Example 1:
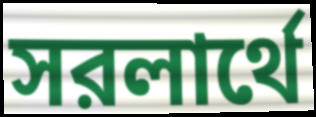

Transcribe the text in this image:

সরলার্থে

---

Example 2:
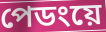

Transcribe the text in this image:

পেডংয়ে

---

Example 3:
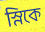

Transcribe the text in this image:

স্নিকে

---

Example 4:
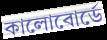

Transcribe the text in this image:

কালোবোর্ডে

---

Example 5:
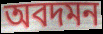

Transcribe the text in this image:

অবদমন